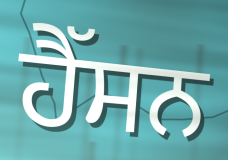
ਹੈੱਸਨ